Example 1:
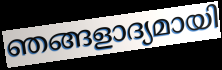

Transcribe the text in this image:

ഞങ്ങളാദ്യമായി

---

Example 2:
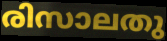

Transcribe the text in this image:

രിസാലതു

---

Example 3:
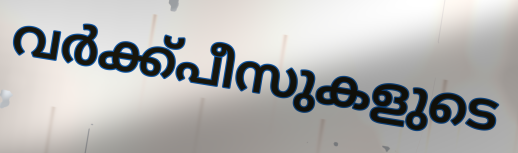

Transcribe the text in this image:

വർക്ക്പീസുകളുടെ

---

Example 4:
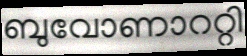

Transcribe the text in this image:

ബുവോണാററ്റി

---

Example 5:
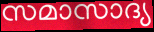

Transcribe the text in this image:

സമാസാദ്യ